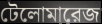
টেলোমারেজ